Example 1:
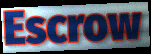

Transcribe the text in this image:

Escrow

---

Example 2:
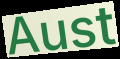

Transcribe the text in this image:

Aust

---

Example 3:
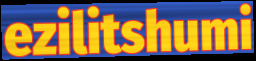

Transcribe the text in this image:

ezilitshumi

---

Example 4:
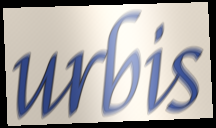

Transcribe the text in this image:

urbis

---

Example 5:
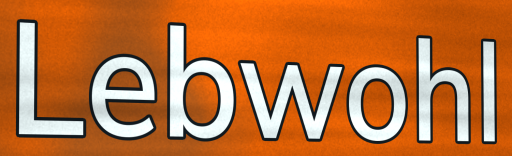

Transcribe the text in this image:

Lebwohl